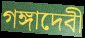
গঙ্গাদেবী